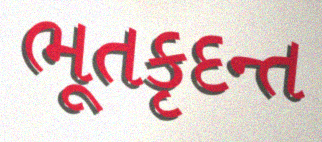
ભૂતકૃદન્ત